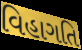
વિહાગતિ